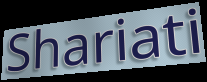
Shariati